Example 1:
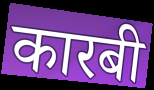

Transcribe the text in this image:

कारबी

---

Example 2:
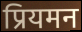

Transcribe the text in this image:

प्रियमन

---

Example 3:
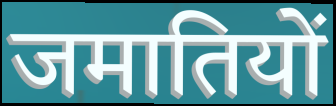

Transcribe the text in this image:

जमातियों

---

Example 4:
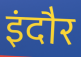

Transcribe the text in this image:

इंदौर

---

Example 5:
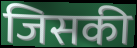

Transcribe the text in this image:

जिसकी